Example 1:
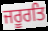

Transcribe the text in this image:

ਜਰੂਰਤਿ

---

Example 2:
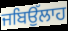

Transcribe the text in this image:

ਜਬਿਉੱਲਾਹ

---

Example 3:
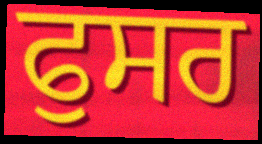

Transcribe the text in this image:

ਫੁਸਰ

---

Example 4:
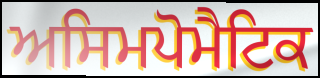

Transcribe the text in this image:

ਅਸਿਮਪੋਮੈਟਿਕ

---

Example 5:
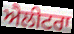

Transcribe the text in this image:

ਐਲੀਟਰਾ